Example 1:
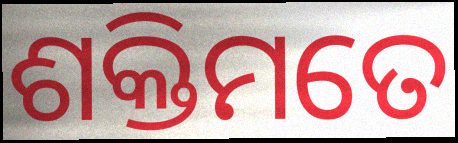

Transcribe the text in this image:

ଶକ୍ତିମତେ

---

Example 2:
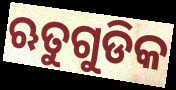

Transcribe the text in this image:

ଋତୁଗୁଡିକ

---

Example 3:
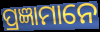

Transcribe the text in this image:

ପ୍ରଜ୍ଞାମାନେ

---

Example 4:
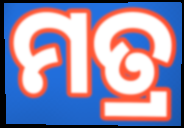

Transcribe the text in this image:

ମତ୍ର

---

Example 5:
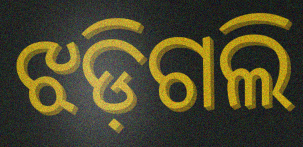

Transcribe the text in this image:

ଝଡ଼ିଗଲି